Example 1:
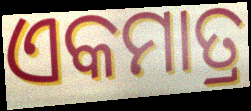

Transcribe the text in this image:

ଏକମାତ୍ର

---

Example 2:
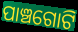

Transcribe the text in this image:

ପାଞ୍ଚଗୋଟି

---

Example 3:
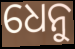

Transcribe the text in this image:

ଧେନୁ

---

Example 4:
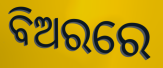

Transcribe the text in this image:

ବିଅରରେ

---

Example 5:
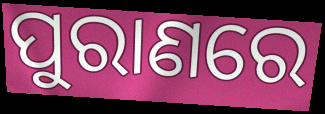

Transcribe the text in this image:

ପୁରାଣରେ